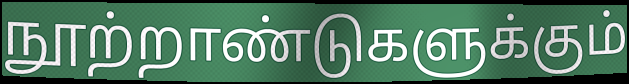
நூற்றாண்டுகளுக்கும்